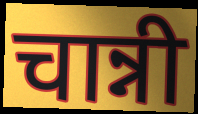
चान्नी